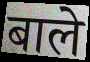
बाले